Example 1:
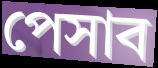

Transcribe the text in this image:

পেসাব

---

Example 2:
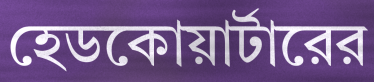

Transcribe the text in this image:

হেডকোয়ার্টারের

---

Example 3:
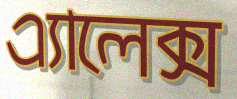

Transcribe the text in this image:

এ্যালেক্স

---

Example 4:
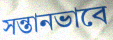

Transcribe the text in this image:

সন্তানভাবে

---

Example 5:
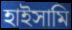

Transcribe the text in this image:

হাইসামি